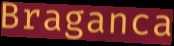
Braganca